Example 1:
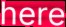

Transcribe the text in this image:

here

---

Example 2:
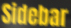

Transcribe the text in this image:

Sidebar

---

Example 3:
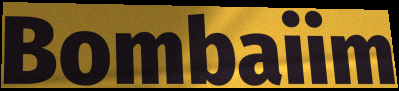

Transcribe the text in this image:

Bombaiim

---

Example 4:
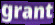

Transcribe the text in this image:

grant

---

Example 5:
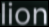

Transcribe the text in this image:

lion